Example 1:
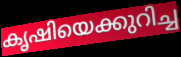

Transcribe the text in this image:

കൃഷിയെക്കുറിച്ച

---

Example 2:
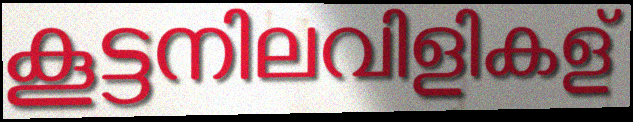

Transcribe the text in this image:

കൂട്ടനിലവിളികള്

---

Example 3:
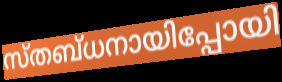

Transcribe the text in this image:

സ്തബ്ധനായിപ്പോയി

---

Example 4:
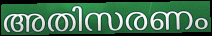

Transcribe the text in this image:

അതിസരണം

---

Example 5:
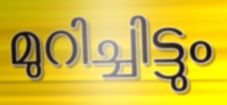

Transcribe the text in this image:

മുറിച്ചിട്ടും